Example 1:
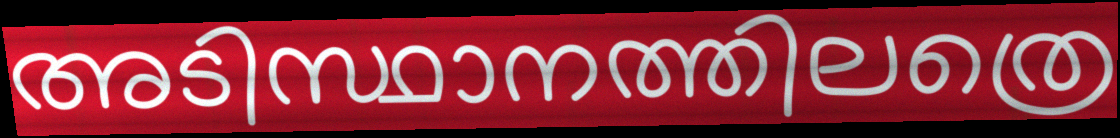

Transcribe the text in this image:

അടിസ്ഥാനത്തിലത്രെ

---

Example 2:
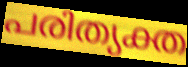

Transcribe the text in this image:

പരിത്യക്ത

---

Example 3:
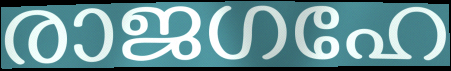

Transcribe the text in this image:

രാജഗഹേ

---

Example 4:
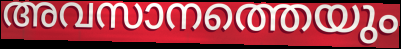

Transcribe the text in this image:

അവസാനത്തെയും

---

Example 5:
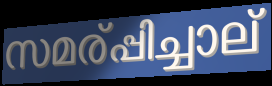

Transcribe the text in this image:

സമര്പ്പിച്ചാല്